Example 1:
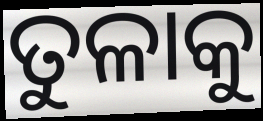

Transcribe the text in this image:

ତୁଳାକୁ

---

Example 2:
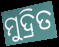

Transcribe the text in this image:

ମୁଦ୍ରିତ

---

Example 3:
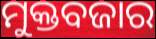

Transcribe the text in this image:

ମୁକ୍ତବଜାର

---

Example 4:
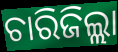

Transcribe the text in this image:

ଚାରିଜିଲ୍ଲା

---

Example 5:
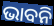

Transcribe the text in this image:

ଭାବନି